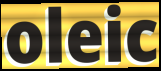
oleic